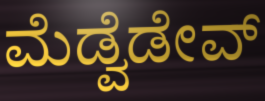
ಮೆಡ್ವೆಡೇವ್